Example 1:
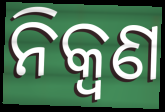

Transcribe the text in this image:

ନିକ୍ୱଣ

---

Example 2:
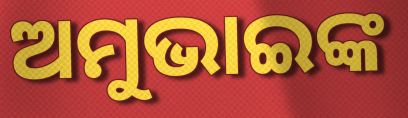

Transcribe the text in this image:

ଅମୁଭାଇଙ୍କ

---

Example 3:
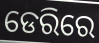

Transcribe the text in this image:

ଡେରିରେ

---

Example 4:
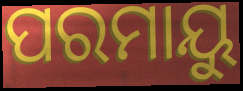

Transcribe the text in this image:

ପରମାୟୁ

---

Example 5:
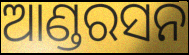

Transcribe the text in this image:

ଆଣ୍ଡରସନ